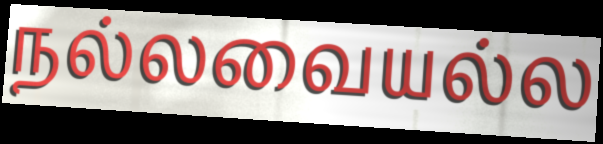
நல்லவையல்ல